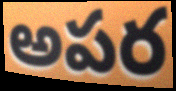
అపర